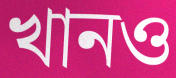
খানও